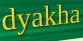
dyakha